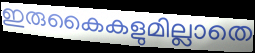
ഇരുകൈകളുമില്ലാതെ